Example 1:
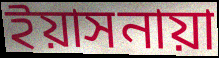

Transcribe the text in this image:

ইয়াসনায়া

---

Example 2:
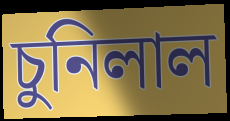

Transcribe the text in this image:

চুনিলাল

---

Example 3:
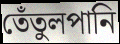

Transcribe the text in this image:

তেঁতুলপানি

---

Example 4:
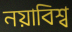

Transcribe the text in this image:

নয়াবিশ্ব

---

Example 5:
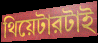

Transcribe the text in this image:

থিয়েটারটাই